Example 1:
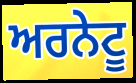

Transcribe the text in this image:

ਅਰਨੇਟੂ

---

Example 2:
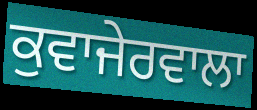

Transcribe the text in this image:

ਕੁਵਾਜੇਰਵਾਲਾ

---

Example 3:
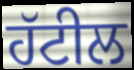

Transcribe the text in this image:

ਹੱਟੀਲ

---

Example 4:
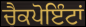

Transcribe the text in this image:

ਚੈਕਪੋਇੰਟਾਂ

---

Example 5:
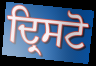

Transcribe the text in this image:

ਦ੍ਰਿਸਟੋ